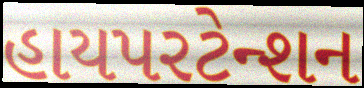
હાયપરટેન્શન